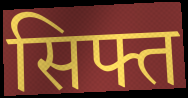
सिफ्त